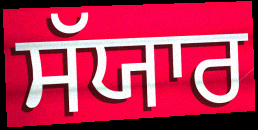
ਸੱਯਾਰ